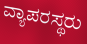
ವ್ಯಾಪರಸ್ಥರು